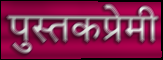
पुस्तकप्रेमी